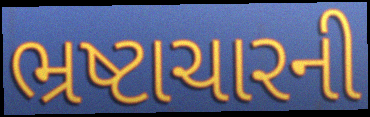
ભ્રષ્ટાચારની